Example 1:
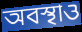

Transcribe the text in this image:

অবস্থাও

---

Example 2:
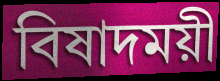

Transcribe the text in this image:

বিষাদময়ী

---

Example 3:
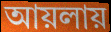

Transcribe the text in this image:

আয়লায়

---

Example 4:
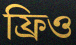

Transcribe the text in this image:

ফ্রিও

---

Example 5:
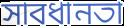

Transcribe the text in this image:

সাবধানতা